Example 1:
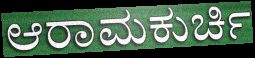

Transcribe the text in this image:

ಆರಾಮಕುರ್ಚಿ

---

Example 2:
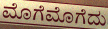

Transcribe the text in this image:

ಮೊಗೆಮೊಗೆದು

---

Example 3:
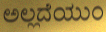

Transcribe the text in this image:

ಅಲ್ಲದೆಯುಂ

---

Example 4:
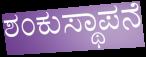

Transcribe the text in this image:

ಶಂಕುಸ್ಥಾಪನೆ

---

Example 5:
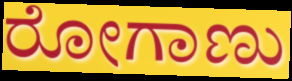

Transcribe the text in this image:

ರೋಗಾಣು